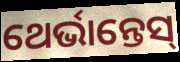
ଥେର୍ଭାନ୍ତେସ୍